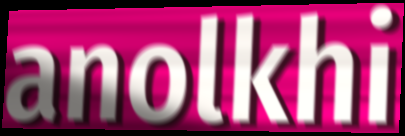
anolkhi